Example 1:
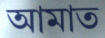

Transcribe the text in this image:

আমাত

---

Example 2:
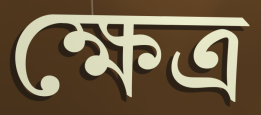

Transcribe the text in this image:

ক্ষেত্ৰ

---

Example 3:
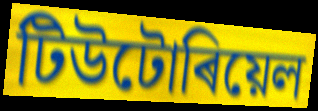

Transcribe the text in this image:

টিউটোৰিয়েল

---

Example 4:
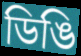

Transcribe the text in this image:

ডিঙি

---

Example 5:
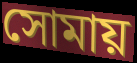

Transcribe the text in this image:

সোমায়